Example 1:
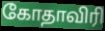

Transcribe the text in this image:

கோதாவிரி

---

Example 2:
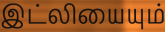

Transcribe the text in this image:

இட்லியையும்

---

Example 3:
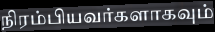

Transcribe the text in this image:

நிரம்பியவர்களாகவும்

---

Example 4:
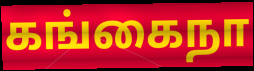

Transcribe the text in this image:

கங்கைநா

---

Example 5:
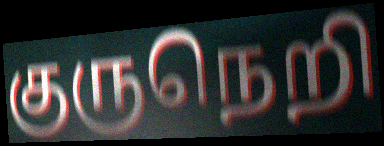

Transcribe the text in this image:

குருநெறி